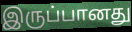
இருப்பானது